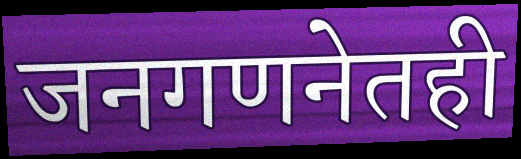
जनगणनेतही